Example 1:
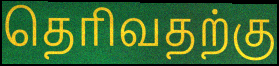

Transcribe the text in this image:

தெரிவதற்கு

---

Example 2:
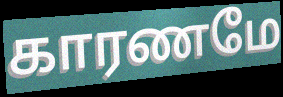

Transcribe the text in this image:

காரணமே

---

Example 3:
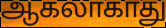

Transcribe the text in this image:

ஆகலாகாது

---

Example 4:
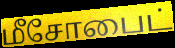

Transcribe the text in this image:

மீசோபைட்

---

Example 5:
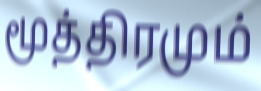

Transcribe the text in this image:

மூத்திரமும்